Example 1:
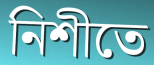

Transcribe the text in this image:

নিশীতে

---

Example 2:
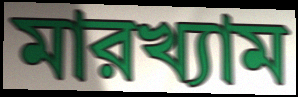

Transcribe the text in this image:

মারখ্যাম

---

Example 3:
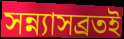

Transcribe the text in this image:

সন্ন্যাসব্রতই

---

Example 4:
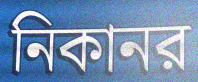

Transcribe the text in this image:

নিকানর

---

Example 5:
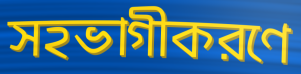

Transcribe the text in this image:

সহভাগীকরণে